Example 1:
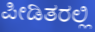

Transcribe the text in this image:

ಪೀಡಿತರಲ್ಲಿ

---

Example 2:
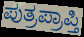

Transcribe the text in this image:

ಪುತ್ರಪ್ರಾಪ್ತಿ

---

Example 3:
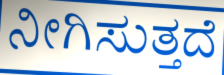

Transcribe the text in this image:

ನೀಗಿಸುತ್ತದೆ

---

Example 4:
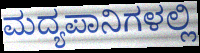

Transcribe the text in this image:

ಮದ್ಯಪಾನಿಗಳಲ್ಲಿ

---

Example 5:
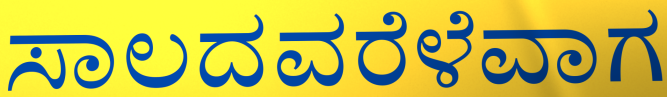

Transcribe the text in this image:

ಸಾಲದವರೆಳೆವಾಗ